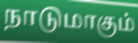
நாடுமாகும்